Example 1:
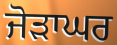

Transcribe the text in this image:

ਜੋੜਾਘਰ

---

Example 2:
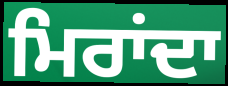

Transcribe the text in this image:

ਮਿਰਾਂਦਾ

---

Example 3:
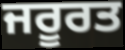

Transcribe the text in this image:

ਜਰੂਰਤ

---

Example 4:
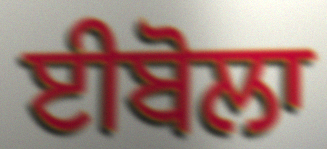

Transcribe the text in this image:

ਈਬੋਲਾ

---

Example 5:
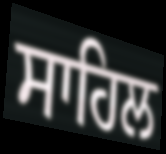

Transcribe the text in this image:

ਸਾਹਿਲ